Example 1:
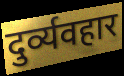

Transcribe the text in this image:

दुर्व्यवहार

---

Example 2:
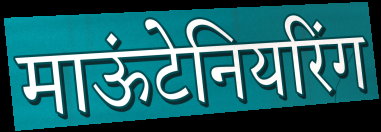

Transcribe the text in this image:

माऊंटेनियरिंग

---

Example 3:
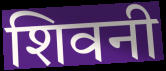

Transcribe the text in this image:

शिवनी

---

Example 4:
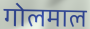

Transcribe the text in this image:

गोलमाल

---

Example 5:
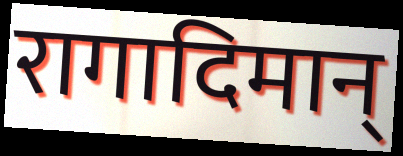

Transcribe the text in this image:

रागादिमान्